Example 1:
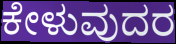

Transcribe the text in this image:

ಕೇಳುವುದರ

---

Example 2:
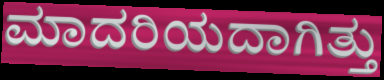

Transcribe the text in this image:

ಮಾದರಿಯದಾಗಿತ್ತು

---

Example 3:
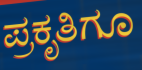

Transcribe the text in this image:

ಪ್ರಕೃತಿಗೂ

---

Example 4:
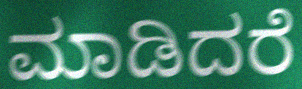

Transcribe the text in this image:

ಮಾಡಿದರೆ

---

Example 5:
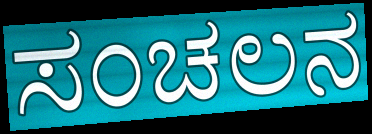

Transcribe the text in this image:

ಸಂಚಲನ